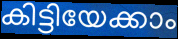
കിട്ടിയേക്കാം